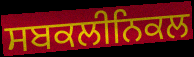
ਸਬਕਲੀਨਿਕਲ